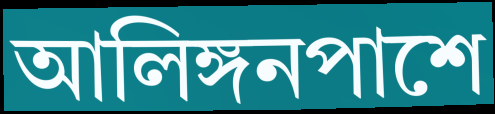
আলিঙ্গনপাশে